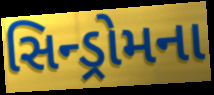
સિન્ડ્રોમના